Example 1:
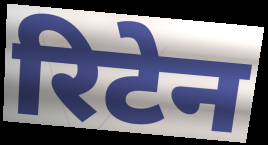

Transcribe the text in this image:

रिटेन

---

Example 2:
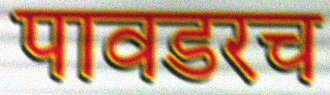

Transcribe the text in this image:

पावडरच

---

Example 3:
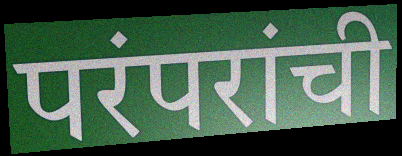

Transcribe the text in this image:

परंपरांची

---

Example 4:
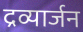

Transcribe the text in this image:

द्रव्यार्जन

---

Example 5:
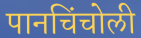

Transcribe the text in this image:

पानचिंचोली